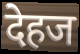
देहज